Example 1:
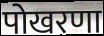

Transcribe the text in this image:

पोखरणा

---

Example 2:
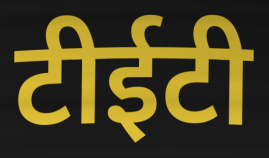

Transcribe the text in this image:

टीईटी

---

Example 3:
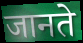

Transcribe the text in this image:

जानते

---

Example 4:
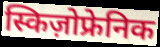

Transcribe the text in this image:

स्किज़ोफ्रेनिक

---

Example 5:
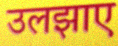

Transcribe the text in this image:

उलझाए